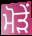
ਮੋੜੇਂ